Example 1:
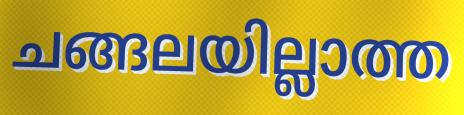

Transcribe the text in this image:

ചങ്ങലയില്ലാത്ത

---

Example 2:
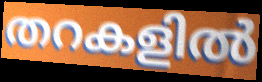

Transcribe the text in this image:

തറകളിൽ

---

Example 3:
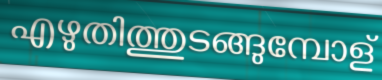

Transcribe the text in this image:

എഴുതിത്തുടങ്ങുമ്പോള്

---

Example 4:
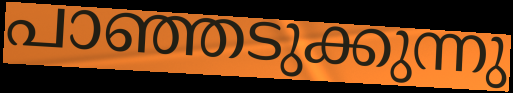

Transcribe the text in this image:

പാഞ്ഞടുക്കുന്നു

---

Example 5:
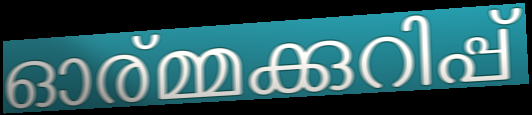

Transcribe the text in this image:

ഓര്മ്മക്കുറിപ്പ്